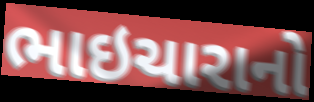
ભાઇચારાનો